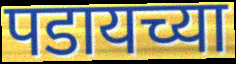
पडायच्या